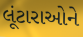
લૂંટારાઓને